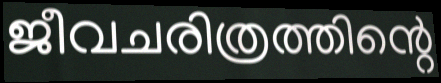
ജീവചരിത്രത്തിന്റെ